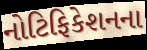
નોટિફિકેશનના